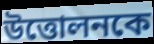
উত্তোলনকে